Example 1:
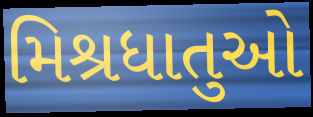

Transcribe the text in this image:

મિશ્રધાતુઓ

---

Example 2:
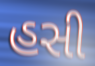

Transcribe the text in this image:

હસી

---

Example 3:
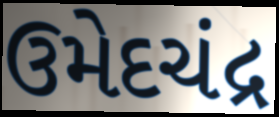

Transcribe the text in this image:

ઉમેદચંદ્ર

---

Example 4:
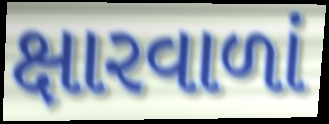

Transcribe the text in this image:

ક્ષારવાળાં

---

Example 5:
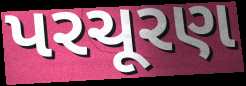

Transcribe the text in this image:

પરચૂરણ